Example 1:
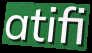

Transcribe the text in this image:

atifi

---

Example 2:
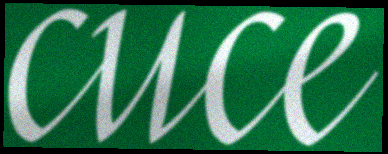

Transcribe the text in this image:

cuce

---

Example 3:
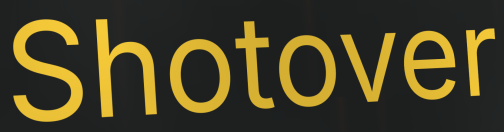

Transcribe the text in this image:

Shotover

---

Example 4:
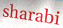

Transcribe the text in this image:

sharabi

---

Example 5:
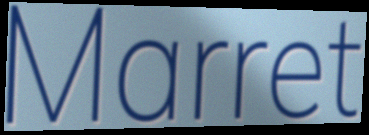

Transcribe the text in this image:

Marret